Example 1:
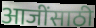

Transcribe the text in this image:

आजींसाठी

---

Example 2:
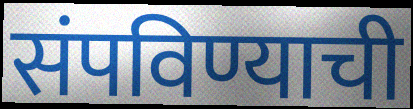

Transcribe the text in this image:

संपविण्याची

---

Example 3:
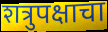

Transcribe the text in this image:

शत्रुपक्षाचा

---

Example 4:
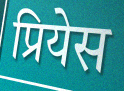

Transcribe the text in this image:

प्रियेस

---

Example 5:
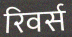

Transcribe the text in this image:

रिवर्स